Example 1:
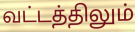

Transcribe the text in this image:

வட்டத்திலும்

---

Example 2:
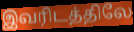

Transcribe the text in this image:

இவரிடத்திலே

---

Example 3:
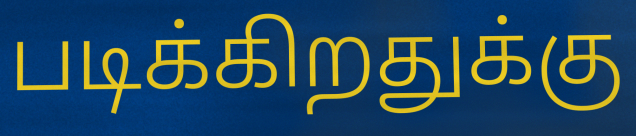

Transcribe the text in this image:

படிக்கிறதுக்கு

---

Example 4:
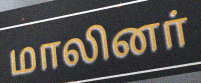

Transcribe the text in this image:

மாலினர்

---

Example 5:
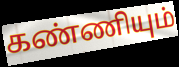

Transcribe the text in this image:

கண்ணியும்